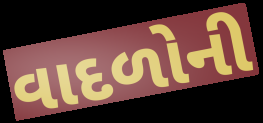
વાદળોની